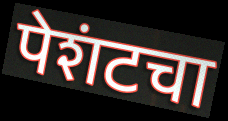
पेशंटचा